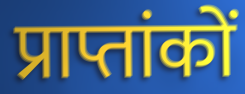
प्राप्तांकों